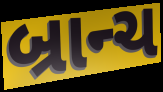
બ્રાન્ચ